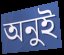
অনুই